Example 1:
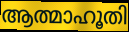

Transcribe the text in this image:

ആത്മാഹൂതി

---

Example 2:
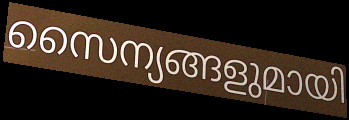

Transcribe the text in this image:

സൈന്യങ്ങളുമായി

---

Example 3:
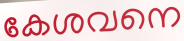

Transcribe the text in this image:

കേശവനെ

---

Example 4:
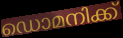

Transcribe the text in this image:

ഡൊമനിക്ക്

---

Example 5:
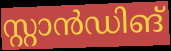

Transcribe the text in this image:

സ്റ്റാൻഡിങ്